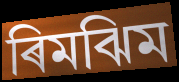
ৰিমঝিম